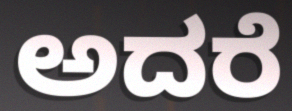
ಅದರೆ